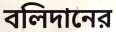
বলিদানের